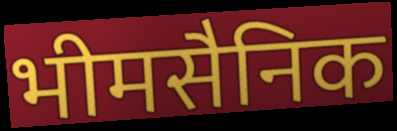
भीमसैनिक